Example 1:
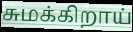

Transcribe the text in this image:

சுமக்கிறாய்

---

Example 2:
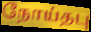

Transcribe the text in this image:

நோய்தபு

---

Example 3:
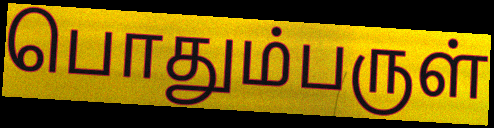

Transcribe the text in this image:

பொதும்பருள்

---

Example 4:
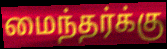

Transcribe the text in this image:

மைந்தர்க்கு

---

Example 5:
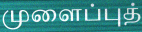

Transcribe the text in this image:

முளைப்புத்